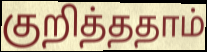
குறித்ததாம்